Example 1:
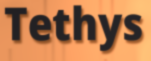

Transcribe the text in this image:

Tethys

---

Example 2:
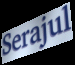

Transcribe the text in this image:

Serajul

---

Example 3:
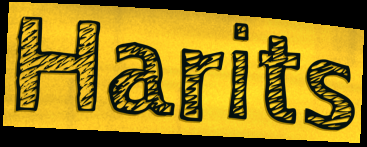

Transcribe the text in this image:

Harits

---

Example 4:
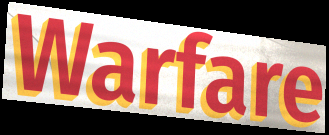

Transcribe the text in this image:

Warfare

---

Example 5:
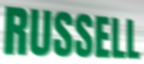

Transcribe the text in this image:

RUSSELL